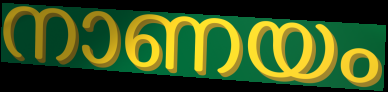
നാണയം